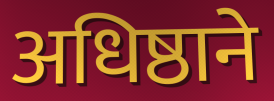
अधिष्ठाने